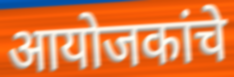
आयोजकांचे